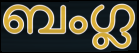
ബംഗ്ല